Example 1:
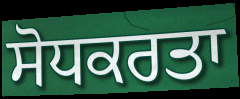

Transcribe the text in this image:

ਸੋਧਕਰਤਾ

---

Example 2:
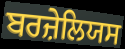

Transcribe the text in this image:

ਬਰਜ਼ੇਲਿਯਸ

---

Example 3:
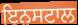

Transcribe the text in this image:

ਇਨਸਟਾਲ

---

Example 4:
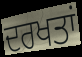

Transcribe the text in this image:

ਦਰਖਤਾਂ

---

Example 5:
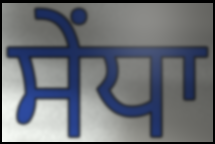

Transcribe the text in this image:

ਸੇਂਧਾ